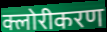
क्लोरीकरण